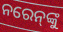
ନରେନ୍‌ଙ୍କୁ